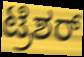
ಟ್ರೆಶರ್